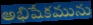
అభిషేకమును